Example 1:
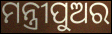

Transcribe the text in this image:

ମନ୍ତ୍ରୀପୁଅର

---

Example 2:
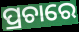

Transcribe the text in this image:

ପ୍ରଚାରେ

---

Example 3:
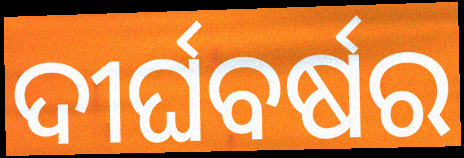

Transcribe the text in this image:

ଦୀର୍ଘବର୍ଷର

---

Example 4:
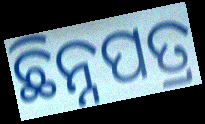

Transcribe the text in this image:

ଛିନ୍ନପତ୍ର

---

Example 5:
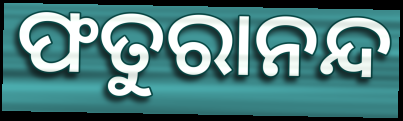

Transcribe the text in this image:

ଫତୁରାନନ୍ଦ